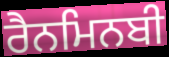
ਰੈਨਮਿਨਬੀ